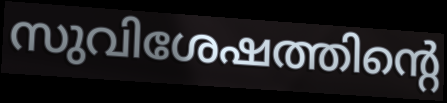
സുവിശേഷത്തിന്റെ